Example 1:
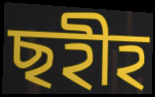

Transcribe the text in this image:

ছহীহ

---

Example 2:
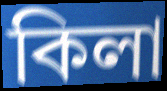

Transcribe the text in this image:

কিলা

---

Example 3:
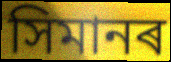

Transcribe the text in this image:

সিমানৰ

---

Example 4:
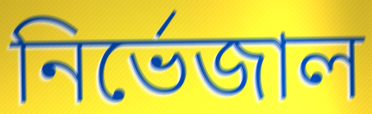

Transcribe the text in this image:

নিৰ্ভেজাল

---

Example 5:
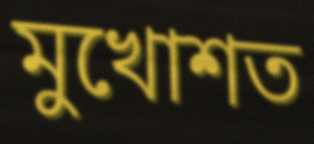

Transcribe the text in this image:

মুখোশত